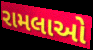
રામલાઓ